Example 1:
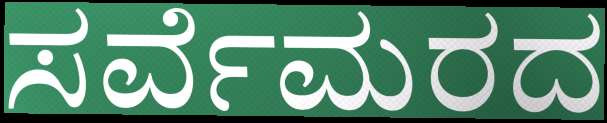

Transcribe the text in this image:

ಸರ್ವೆಮರದ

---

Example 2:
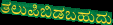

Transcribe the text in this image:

ತಲುಪಿಬಿಡಬಹುದು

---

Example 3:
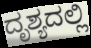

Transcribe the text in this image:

ದೃಶ್ಯದಲ್ಲಿ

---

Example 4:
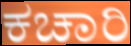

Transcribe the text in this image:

ಕಚಾರಿ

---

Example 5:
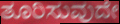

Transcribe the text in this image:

ತೂರಿಸುವುದೇ